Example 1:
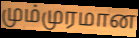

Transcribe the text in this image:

மும்முரமான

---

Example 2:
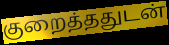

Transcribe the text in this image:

குறைத்ததுடன்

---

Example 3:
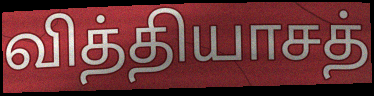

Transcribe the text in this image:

வித்தியாசத்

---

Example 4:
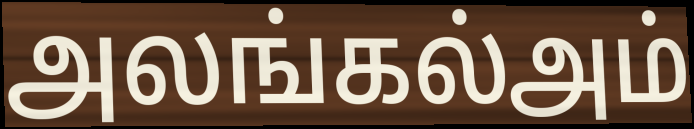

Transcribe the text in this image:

அலங்கல்அம்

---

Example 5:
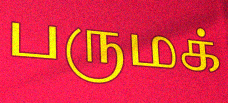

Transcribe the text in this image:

பருமக்